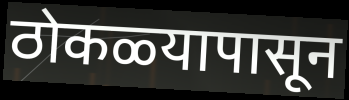
ठोकळ्यापासून